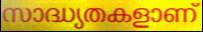
സാദ്ധ്യതകളാണ്